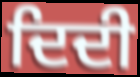
ਦਿਦੀ